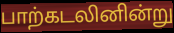
பாற்கடலினின்று